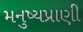
મનુષ્યપ્રાણી